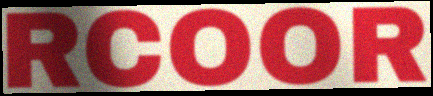
RCOOR